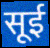
सूई